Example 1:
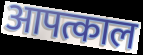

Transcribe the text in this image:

आपत्काल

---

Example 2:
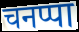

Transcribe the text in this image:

चनप्पा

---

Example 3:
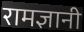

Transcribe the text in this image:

रामज्ञानी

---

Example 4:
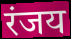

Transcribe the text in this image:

रंजय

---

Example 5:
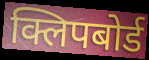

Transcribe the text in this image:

क्लिपबोर्ड